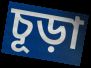
চূড়া